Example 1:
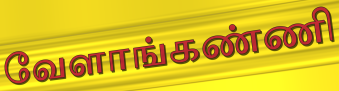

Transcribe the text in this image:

வேளாங்கண்ணி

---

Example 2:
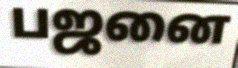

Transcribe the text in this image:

பஜனை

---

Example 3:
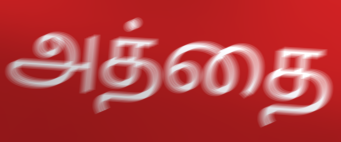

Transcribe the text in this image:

அத்தை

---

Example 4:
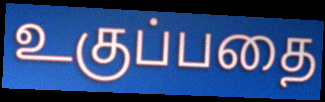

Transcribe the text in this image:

உகுப்பதை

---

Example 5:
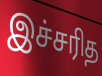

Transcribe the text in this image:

இச்சரித